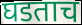
घडताच